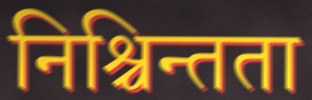
निश्चिन्तता